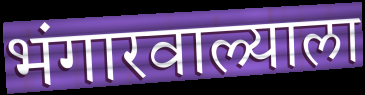
भंगारवाल्याला